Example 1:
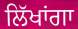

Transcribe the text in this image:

ਲਿੱਖਾਂਗਾ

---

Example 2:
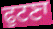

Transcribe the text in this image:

ਫੁਟਣਾ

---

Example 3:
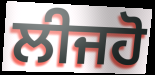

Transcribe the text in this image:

ਲੀਜਹੋ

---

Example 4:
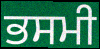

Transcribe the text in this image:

ਭਸਮੀ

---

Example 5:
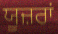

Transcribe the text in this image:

ਯੂਜ਼ਰਾਂ